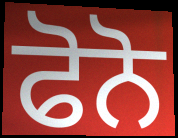
ਫੋਨੋ